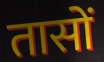
तासों